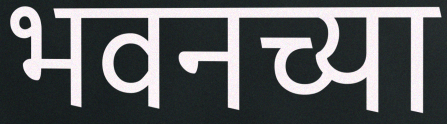
भवनच्या